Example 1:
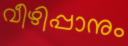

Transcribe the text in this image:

വീഴിപ്പാനും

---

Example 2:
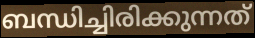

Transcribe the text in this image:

ബന്ധിച്ചിരിക്കുന്നത്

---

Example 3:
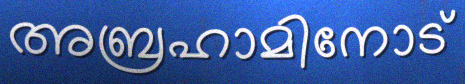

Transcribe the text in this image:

അബ്രഹാമിനോട്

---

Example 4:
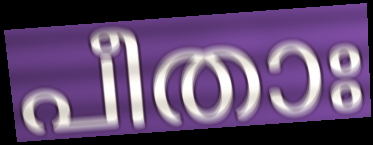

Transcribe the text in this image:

പീതാഃ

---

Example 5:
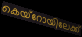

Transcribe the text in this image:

കെയ്റോയിലേക്ക്